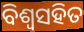
ବିଶ୍ଵସହିତ